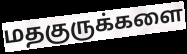
மதகுருக்களை